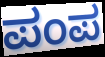
ಪಂಪ